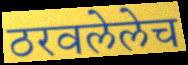
ठरवलेलेच